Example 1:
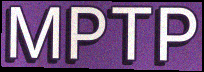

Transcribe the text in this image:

MPTP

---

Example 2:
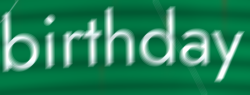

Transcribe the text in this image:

birthday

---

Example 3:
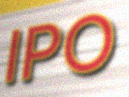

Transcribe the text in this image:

IPO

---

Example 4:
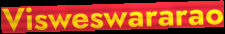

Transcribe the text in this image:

Visweswararao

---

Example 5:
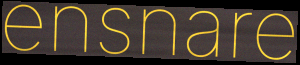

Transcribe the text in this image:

ensnare